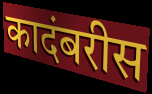
कादंबरीस